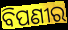
ବିପଣୀର